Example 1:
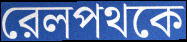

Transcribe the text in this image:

রেলপথকে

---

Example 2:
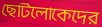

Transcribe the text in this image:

ছোটলোকেদের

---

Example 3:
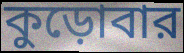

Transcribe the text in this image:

কুড়োবার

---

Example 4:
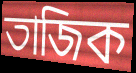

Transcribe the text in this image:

তাজিক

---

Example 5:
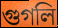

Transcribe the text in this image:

গুগলি